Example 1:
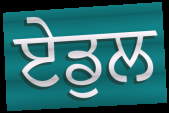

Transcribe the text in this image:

ਏਡੁਲ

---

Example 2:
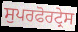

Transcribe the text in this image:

ਸੁਪਰਫੋਰਟ੍ਰੇਸ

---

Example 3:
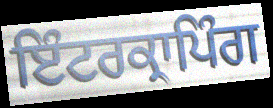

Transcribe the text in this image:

ਇੰਟਰਕ੍ਰਾਪਿੰਗ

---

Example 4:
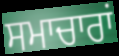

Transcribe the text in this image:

ਸਮਾਚਾਰਾਂ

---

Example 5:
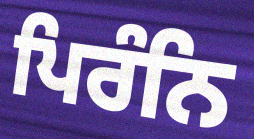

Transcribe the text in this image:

ਪਿਰੰਨਿ